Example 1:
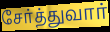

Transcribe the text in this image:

சேர்த்துவார்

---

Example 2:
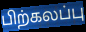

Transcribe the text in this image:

பிற்கலப்பு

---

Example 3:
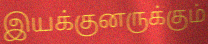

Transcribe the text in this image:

இயக்குனருக்கும்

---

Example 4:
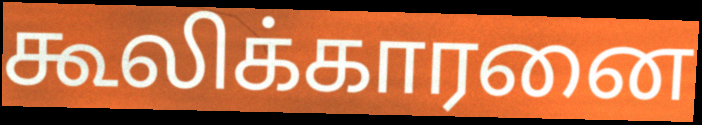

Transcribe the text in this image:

கூலிக்காரனை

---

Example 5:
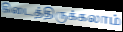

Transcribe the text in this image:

கிடைத்திருக்கலாம்